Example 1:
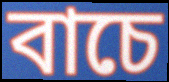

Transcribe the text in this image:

বাচে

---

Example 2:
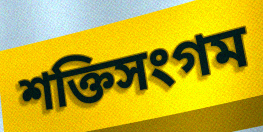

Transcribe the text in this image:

শক্তিসংগম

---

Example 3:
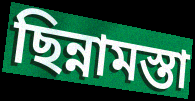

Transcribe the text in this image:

ছিন্নামস্তা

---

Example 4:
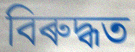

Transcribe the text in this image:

বিৰুদ্ধত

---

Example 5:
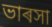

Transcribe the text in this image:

ভাৰসা